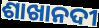
ଶାଖାନଦୀ